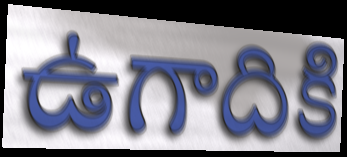
ఉగాదికి